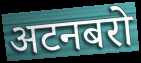
अटनबरो